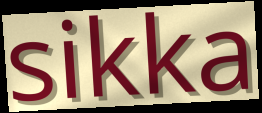
sikka